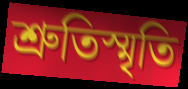
শ্রুতিস্মৃতি